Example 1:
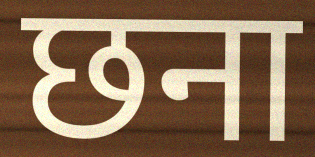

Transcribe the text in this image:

छना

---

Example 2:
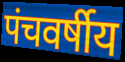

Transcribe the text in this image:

पंचवर्षीय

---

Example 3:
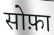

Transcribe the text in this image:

सोफ़ा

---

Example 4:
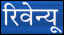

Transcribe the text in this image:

रिवेन्यू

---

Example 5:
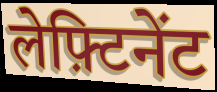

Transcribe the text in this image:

लेफ़्टिनेंट